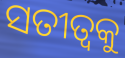
ସତୀତ୍ୱକୁ